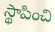
స్థాపించి